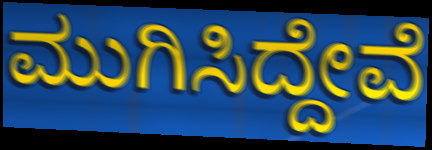
ಮುಗಿಸಿದ್ದೇವೆ